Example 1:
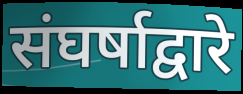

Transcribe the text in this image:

संघर्षाद्वारे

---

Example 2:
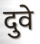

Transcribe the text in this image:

दुवे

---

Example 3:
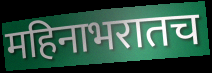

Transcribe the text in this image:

महिनाभरातच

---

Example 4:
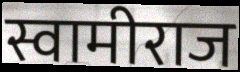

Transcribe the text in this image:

स्वामीराज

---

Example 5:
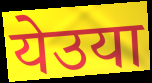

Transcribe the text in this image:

येउया